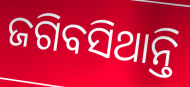
ଜଗିବସିଥାନ୍ତି